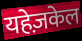
यहेज़केल